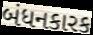
બંધનકારક